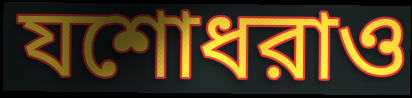
যশোধরাও